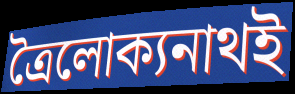
ত্রৈলোক্যনাথই